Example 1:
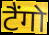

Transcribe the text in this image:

टैंगो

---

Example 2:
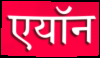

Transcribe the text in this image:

एयॉन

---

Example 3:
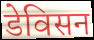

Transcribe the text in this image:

डेविसन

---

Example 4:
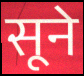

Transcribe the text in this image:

सूने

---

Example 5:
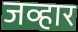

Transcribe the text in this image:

जव्हार